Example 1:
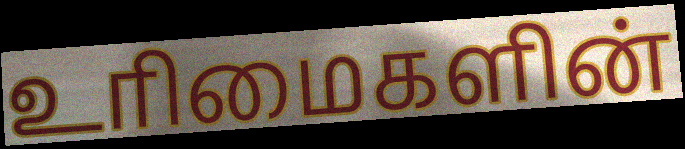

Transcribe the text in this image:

உரிமைகளின்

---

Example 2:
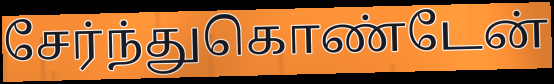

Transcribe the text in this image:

சேர்ந்துகொண்டேன்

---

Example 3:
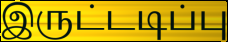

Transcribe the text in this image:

இருட்டடிப்பு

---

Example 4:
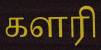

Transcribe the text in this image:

களரி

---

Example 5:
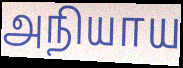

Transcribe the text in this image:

அநியாய